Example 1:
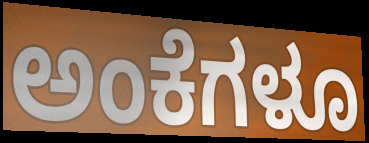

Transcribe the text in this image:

ಅಂಕೆಗಳೂ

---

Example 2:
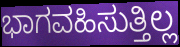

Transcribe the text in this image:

ಭಾಗವಹಿಸುತ್ತಿಲ್ಲ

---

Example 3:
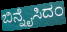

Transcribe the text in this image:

ಬಿನ್ನೈಸಿದಂ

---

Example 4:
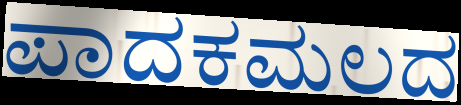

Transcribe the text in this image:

ಪಾದಕಮಲದ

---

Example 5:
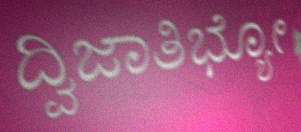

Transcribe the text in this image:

ದ್ವಿಜಾತಿಭ್ಯೋ